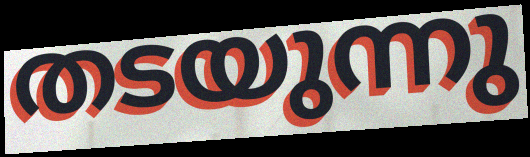
തടയുന്നു